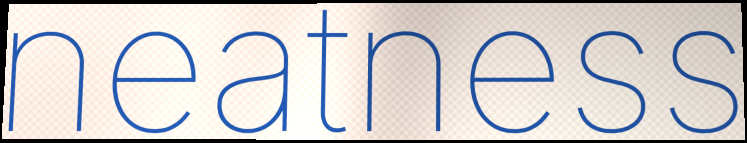
neatness